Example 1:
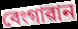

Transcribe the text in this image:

বেংগাৱান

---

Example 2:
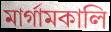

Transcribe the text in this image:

মাৰ্গামকালি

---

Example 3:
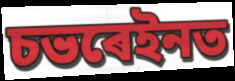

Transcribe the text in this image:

চভৰেইনত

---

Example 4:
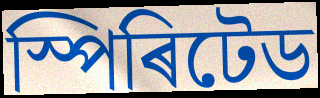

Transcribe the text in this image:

স্পিৰিটেড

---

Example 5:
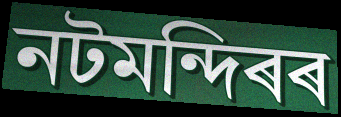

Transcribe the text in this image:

নটমন্দিৰৰ